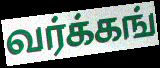
வர்க்கங்